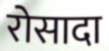
रोसादा